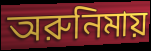
অরুনিমায়